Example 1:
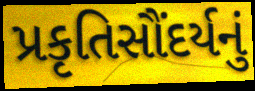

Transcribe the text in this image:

પ્રકૃતિસૌંદર્યનું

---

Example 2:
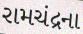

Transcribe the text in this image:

રામચંદ્રના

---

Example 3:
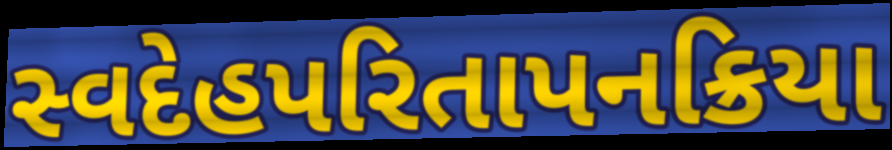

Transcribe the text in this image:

સ્વદેહપરિતાપનક્રિયા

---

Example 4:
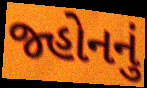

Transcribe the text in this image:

જ્હોનનું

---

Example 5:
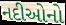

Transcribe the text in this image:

નદીઓનો